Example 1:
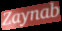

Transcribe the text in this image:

Zaynab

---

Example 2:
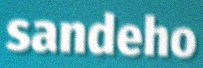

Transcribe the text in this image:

sandeho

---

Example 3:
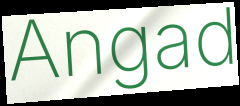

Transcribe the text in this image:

Angad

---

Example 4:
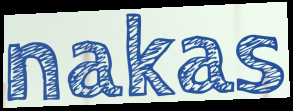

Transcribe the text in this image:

nakas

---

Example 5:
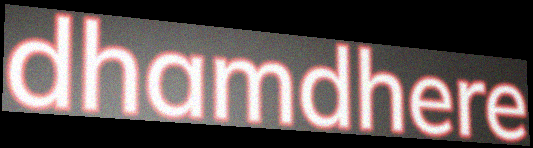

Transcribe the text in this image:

dhamdhere